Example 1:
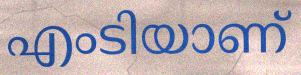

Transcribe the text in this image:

എംടിയാണ്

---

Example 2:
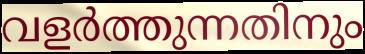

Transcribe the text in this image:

വളർത്തുന്നതിനും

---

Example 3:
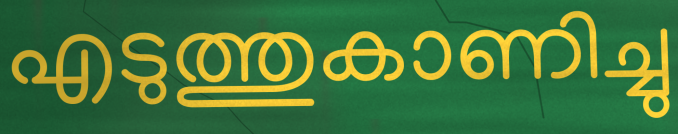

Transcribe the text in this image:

എടുത്തുകാണിച്ചു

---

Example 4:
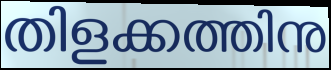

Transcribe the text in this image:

തിളക്കത്തിനു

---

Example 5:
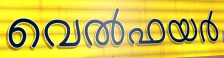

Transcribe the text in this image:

വെൽഫയർ